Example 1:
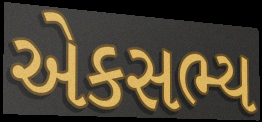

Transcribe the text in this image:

એકસભ્ય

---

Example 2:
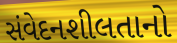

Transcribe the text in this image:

સંવેદનશીલતાનો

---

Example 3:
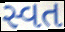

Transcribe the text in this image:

સ્વત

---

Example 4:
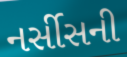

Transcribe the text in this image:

નર્સીસની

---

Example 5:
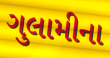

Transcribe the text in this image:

ગુલામીના